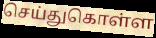
செய்துகொள்ள